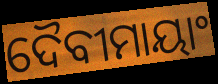
ଦୈବୀମାୟାଂ